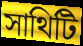
সাথিটি